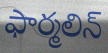
ఫార్మలిన్